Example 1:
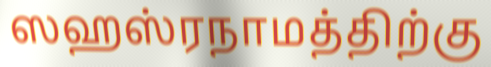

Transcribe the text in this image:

ஸஹஸ்ரநாமத்திற்கு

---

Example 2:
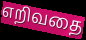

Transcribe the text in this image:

எறிவதை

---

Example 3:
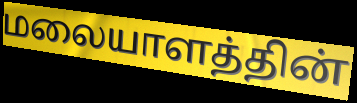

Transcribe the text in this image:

மலையாளத்தின்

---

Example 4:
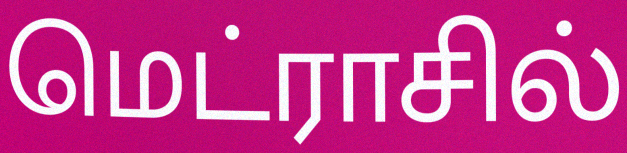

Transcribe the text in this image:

மெட்ராசில்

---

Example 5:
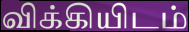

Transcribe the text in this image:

விக்கியிடம்